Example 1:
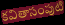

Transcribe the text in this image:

కవితాసంపుటి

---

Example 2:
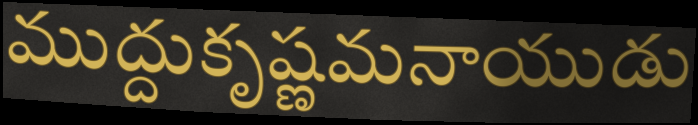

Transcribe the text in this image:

ముద్దుకృష్ణమనాయుడు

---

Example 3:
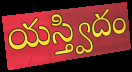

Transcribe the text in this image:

యస్త్విదం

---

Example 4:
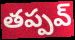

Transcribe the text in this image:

తప్పవ్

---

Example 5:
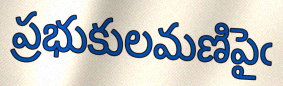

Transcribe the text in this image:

ప్రభుకులమణిపైఁ